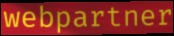
webpartner